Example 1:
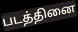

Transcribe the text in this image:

படத்தினை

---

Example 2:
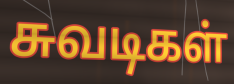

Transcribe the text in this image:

சுவடிகள்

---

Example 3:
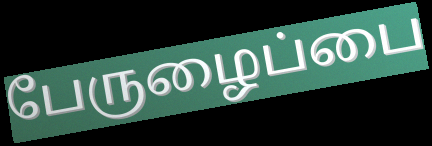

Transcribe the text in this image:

பேருழைப்பை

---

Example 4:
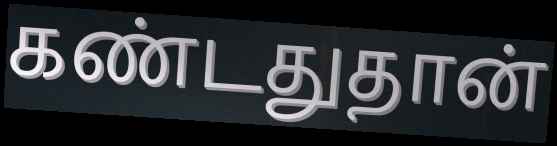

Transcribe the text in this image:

கண்டதுதான்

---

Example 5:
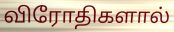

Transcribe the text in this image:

விரோதிகளால்